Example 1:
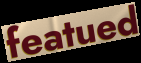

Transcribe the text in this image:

featued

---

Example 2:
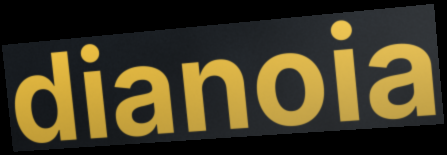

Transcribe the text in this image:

dianoia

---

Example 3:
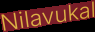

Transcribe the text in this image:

Nilavukal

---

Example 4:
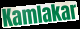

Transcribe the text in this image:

Kamlakar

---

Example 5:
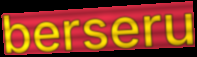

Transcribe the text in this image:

berseru